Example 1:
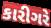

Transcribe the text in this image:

કારીગરે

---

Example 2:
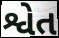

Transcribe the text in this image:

શ્વેત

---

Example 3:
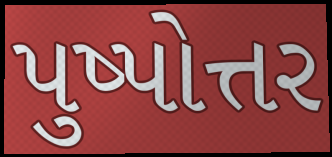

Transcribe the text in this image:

પુષ્પોત્તર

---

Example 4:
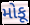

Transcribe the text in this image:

મોકૂ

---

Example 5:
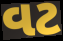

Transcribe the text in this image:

વટ